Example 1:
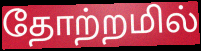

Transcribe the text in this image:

தோற்றமில்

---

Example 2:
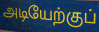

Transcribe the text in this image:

அடியேற்குப்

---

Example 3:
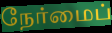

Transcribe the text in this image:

நேர்மைப்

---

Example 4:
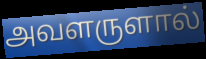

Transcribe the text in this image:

அவளருளால்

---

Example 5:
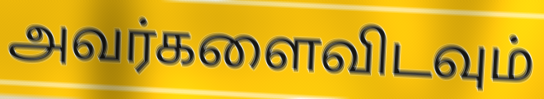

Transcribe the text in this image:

அவர்களைவிடவும்